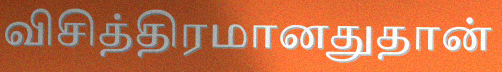
விசித்திரமானதுதான்